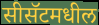
सीसॅटमधील